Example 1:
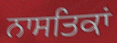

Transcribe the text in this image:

ਨਾਸਤਿਕਾਂ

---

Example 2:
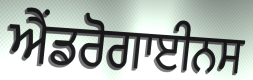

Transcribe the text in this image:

ਐਂਡਰੋਗਾਈਨਸ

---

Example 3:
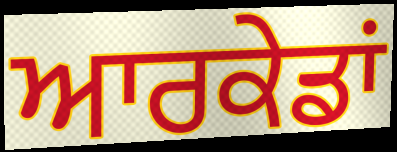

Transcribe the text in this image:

ਆਰਕੇਡਾਂ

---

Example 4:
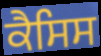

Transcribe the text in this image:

ਕੈਸਿਸ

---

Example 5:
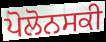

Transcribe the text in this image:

ਪੋਲੋਨਸਕੀ